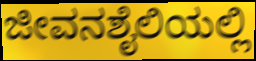
ಜೀವನಶೈಲಿಯಲ್ಲಿ